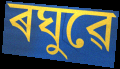
ৰঘুৱে